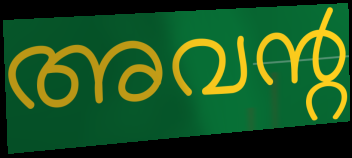
അവന്റ